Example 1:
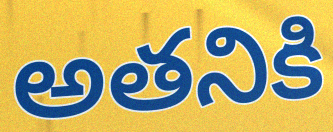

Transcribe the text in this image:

అతనికి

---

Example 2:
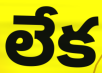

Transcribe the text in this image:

లేక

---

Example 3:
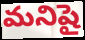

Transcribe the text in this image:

మనిషై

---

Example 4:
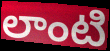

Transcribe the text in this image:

లాంటి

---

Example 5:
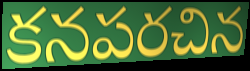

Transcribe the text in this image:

కనపరచిన